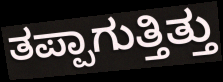
ತಪ್ಪಾಗುತ್ತಿತ್ತು